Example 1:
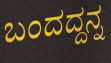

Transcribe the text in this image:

ಬಂದದ್ದನ್ನ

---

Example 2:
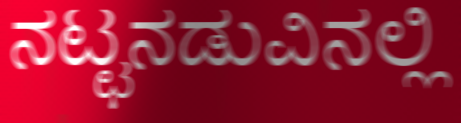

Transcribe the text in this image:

ನಟ್ಟನಡುವಿನಲ್ಲಿ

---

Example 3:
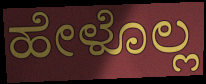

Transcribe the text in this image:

ಹೇಳೊಲ್ಲ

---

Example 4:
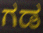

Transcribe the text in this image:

ಗಡ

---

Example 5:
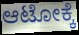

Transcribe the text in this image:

ಆಟೋಕ್ಕೆ